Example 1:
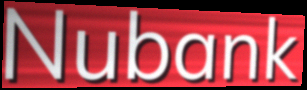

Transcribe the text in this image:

Nubank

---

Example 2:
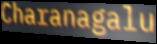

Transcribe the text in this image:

Charanagalu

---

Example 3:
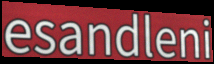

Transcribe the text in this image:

esandleni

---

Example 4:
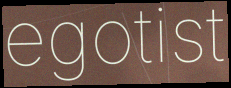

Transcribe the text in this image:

egotist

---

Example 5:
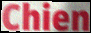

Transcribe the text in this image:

Chien